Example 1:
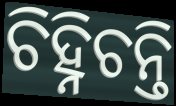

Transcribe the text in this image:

ଚିହ୍ନିଚନ୍ତି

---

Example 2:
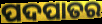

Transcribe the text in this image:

ପଦପାତର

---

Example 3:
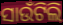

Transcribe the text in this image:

ସାଉଁଟିଲି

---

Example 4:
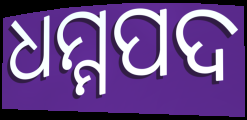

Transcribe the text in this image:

ଧମ୍ମପଦ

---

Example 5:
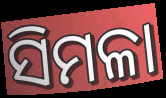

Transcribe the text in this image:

ସିମଳା